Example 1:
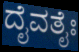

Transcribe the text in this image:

ದೈವತೈಃ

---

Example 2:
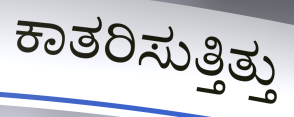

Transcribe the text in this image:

ಕಾತರಿಸುತ್ತಿತ್ತು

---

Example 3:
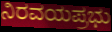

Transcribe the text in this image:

ನಿರವಯಪ್ರಭು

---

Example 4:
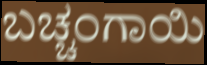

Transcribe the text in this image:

ಬಚ್ಚಂಗಾಯಿ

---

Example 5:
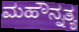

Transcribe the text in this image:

ಮಹೌನ್ನತ್ಯ